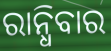
ରାନ୍ଧିବାର